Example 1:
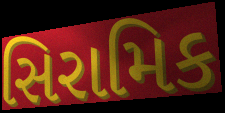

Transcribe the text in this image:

સિરામિક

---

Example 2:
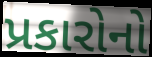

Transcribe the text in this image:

પ્રકારોનો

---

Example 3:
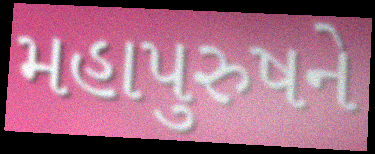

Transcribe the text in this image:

મહાપુરુષને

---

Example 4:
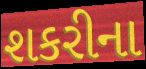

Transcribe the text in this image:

શકરીના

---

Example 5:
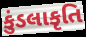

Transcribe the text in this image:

કુંડલાકૃતિ